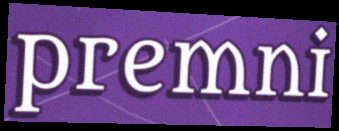
premni